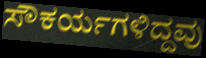
ಸೌಕರ್ಯಗಳಿದ್ದವು